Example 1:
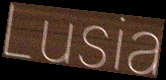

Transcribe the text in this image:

Lusia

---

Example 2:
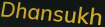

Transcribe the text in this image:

Dhansukh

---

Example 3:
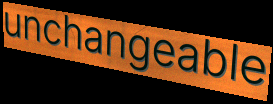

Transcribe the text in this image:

unchangeable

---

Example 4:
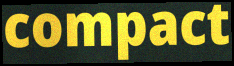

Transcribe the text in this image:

compact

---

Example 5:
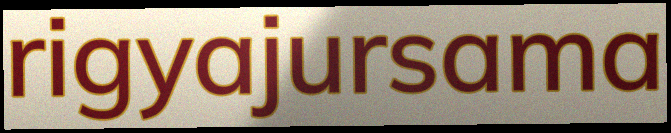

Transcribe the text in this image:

rigyajursama